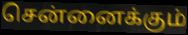
சென்னைக்கும்